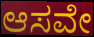
ಆಸವೇ